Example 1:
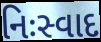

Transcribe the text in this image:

નિઃસ્વાદ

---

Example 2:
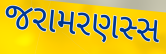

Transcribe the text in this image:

જરામરણસ્સ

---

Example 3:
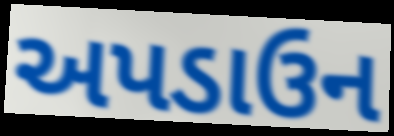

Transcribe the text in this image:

અપડાઉન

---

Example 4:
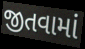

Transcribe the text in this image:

જીતવામાં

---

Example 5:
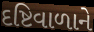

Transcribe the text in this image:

દષ્ટિવાળાને